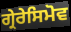
ਗ੍ਰੇਰੇਸਿਮੋਵ